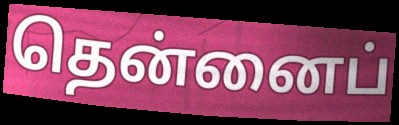
தென்னைப்